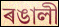
ৰঙালী